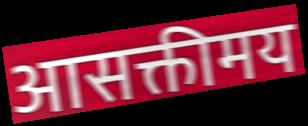
आसक्तीमय